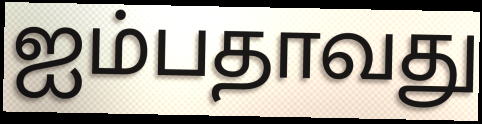
ஐம்பதாவது